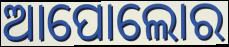
ଆପୋଲୋର